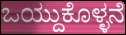
ಒಯ್ದುಕೊಳ್ಳನೆ